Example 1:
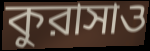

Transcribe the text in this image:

কুরাসাও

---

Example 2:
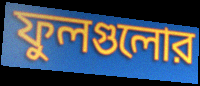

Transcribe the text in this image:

ফুলগুলোর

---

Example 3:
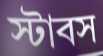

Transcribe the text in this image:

স্টাবস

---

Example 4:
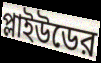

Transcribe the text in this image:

প্লাইউডের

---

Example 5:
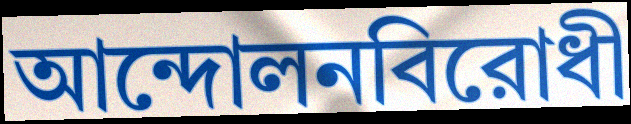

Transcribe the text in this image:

আন্দোলনবিরোধী